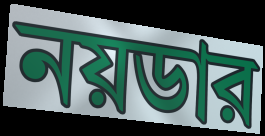
নয়ডার